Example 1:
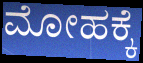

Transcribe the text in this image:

ಮೋಹಕ್ಕೆ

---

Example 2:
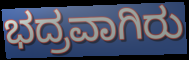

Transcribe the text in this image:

ಭದ್ರವಾಗಿರು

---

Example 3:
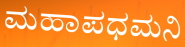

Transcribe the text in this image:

ಮಹಾಪಧಮನಿ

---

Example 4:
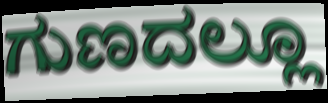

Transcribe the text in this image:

ಗುಣದಲ್ಲೂ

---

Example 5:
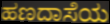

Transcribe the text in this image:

ಹಣದಾಸೆಯ